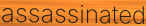
assassinated